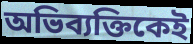
অভিব্যক্তিকেই